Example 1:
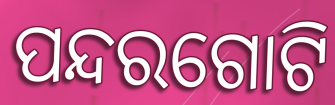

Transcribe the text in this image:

ପନ୍ଦରଗୋଟି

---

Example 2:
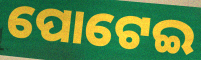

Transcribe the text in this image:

ପୋଟେଇ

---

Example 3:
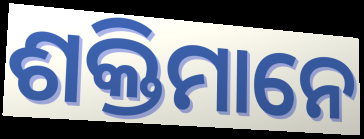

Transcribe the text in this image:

ଶକ୍ତିମାନେ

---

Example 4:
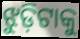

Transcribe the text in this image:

ଝୁଡ଼ିଟାକୁ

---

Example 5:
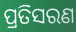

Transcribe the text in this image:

ପ୍ରତିସରଣ